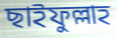
ছাইফুল্লাহ